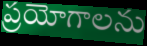
ప్రయోగాలను